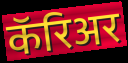
कॅरिअर